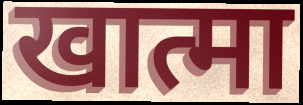
खात्मा